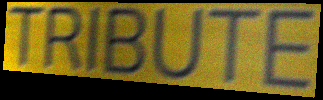
TRIBUTE